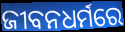
ଜୀବନଧର୍ମରେ